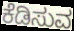
ಕೆಡಿಸುವ